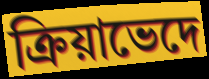
ক্রিয়াভেদে